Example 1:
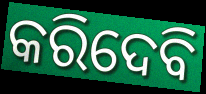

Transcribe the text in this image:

କରିଦେବି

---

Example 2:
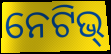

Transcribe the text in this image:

ନେଟିଭ୍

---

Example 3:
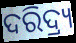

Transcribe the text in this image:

ଦରିଦ୍ର୍ୟ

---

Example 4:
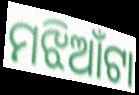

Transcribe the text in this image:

ମଝିଆଁଟା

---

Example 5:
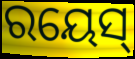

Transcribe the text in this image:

ରୟେସ୍